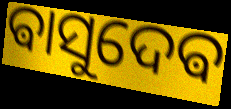
ଵାସୁଦେଵ